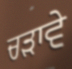
ਚੜਾਵੇ